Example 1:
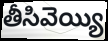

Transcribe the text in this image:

తీసివెయ్యి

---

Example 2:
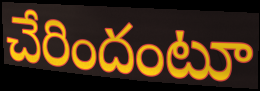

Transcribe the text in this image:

చేరిందంటూ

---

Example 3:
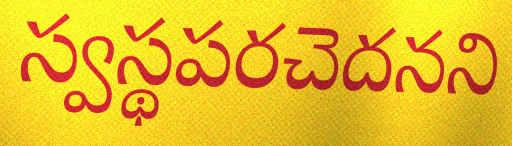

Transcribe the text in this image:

స్వస్థపరచెదనని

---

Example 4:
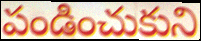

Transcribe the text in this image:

పండించుకుని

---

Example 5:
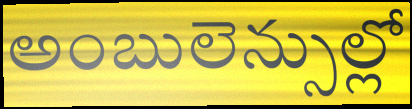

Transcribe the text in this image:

అంబులెన్సుల్లో